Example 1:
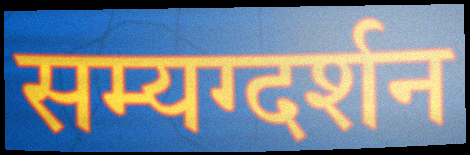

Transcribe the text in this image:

सम्‍यग्‍दर्शन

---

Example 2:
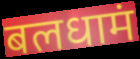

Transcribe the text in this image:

बलधामं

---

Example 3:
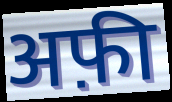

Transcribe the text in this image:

अफ़ी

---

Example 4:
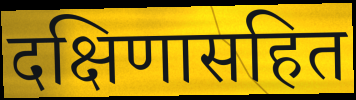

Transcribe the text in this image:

दक्षिणासहित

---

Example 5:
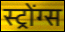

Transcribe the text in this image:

स्ट्रोंग्स